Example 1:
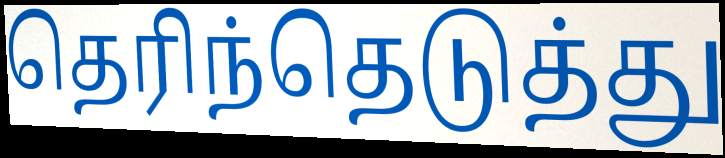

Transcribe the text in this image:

தெரிந்தெடுத்து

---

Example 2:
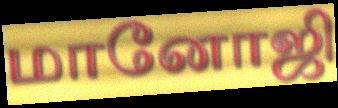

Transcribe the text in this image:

மானோஜி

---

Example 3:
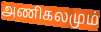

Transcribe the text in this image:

அணிகலமும்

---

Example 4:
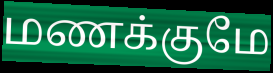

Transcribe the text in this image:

மணக்குமே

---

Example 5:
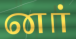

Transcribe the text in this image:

னர்